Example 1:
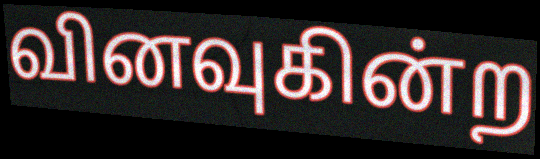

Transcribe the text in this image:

வினவுகின்ற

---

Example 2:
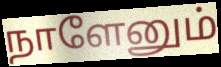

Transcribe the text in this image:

நாளேனும்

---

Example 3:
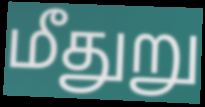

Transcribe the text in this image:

மீதுறு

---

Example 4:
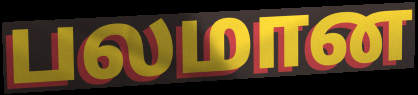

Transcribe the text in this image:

பலமான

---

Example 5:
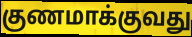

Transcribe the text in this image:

குணமாக்குவது